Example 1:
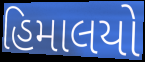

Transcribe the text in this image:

હિમાલયો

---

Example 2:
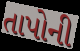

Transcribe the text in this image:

તાપોની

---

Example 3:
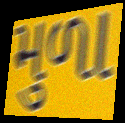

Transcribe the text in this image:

મુળા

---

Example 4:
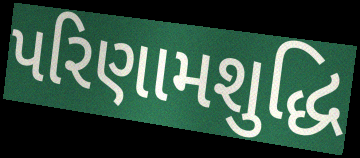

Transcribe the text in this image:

પરિણામશુદ્ધિ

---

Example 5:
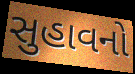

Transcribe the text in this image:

સુહાવનો